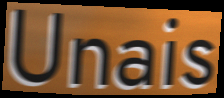
Unais